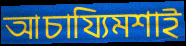
আচায্যিমশাই